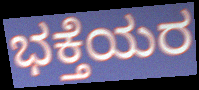
ಭಕ್ತೆಯರ